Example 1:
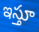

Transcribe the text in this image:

ఇస్తూ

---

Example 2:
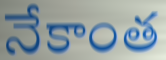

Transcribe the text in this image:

నేకాంత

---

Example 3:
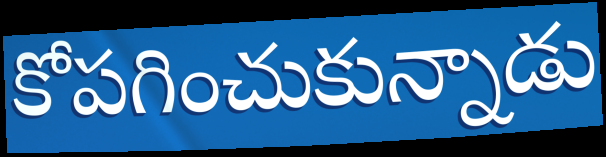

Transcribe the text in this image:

కోపగించుకున్నాడు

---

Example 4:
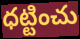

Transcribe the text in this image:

ధట్టించు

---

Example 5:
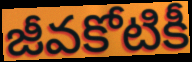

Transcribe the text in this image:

జీవకోటికీ